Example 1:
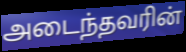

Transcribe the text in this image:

அடைந்தவரின்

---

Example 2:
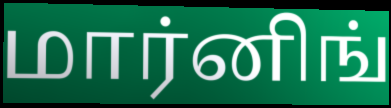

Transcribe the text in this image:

மார்னிங்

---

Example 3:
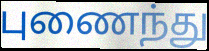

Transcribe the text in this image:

புணைந்து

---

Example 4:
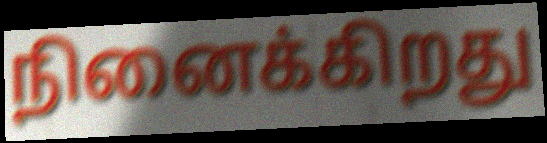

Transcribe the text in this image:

நினைக்கிறது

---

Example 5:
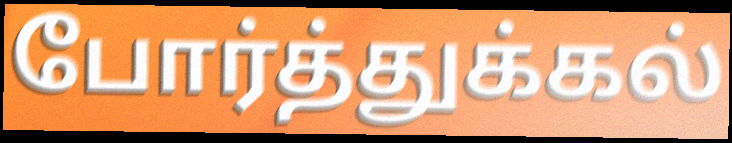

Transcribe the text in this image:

போர்த்துக்கல்